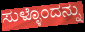
ಸುಳ್ಳೊಂದನ್ನು